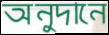
অনুদানে